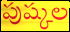
పుష్కల